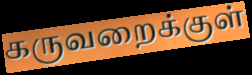
கருவறைக்குள்